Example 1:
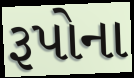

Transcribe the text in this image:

રૂપોના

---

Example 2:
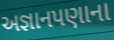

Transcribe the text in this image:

અજ્ઞાનપણાના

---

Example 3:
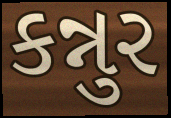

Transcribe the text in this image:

કન્નુર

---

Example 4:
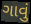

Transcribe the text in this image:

ગાવું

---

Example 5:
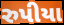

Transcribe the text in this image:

રુપીયા